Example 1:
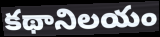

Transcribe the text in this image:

కథానిలయం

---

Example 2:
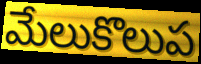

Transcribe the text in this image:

మేలుకొలుప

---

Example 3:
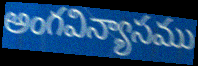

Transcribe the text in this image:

అంగవిన్యాసము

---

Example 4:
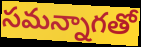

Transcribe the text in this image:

సమన్నాగతో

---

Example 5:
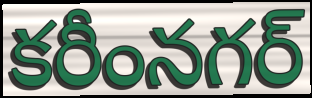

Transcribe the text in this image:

కరీంనగర్